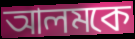
আলমকে